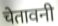
चेतावनी